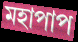
মহাপাপ